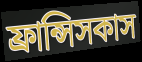
ফ্রান্সিসকাস